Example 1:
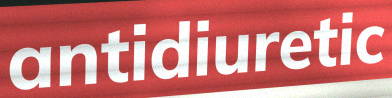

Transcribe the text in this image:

antidiuretic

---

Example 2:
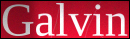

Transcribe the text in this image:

Galvin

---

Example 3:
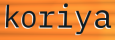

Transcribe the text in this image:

koriya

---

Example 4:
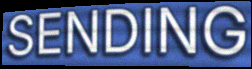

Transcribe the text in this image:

SENDING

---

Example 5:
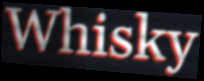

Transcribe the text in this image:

Whisky